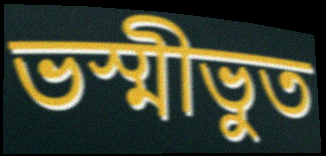
ভস্মীভুত